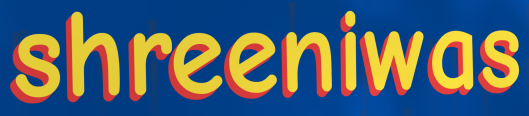
shreeniwas